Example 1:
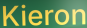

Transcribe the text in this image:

Kieron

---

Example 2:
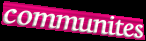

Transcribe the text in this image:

communites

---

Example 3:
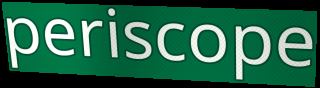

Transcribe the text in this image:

periscope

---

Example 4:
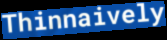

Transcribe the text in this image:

Thinnaively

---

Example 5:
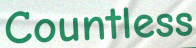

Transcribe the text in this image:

Countless